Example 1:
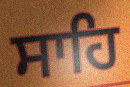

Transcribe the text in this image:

ਸਾਹਿ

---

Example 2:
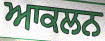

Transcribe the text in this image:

ਆਕਲਨ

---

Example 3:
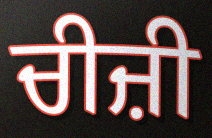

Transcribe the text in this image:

ਚੀਜ਼ੀ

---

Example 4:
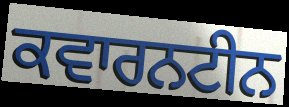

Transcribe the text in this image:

ਕਵਾਰਨਟੀਨ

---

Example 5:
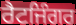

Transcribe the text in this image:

ਰੈਟਜਿੰਗਰ